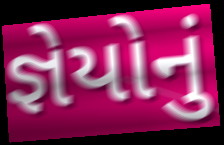
જ્ઞેયોનું